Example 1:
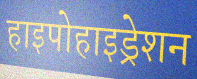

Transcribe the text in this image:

हाइपोहाइड्रेशन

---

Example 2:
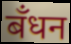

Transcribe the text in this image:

बँधन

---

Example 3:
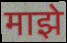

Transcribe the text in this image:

माझे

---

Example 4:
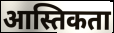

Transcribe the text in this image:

आस्तिकता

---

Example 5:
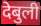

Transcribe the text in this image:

देबुली